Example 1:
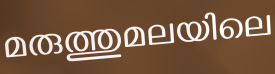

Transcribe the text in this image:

മരുത്തുമലയിലെ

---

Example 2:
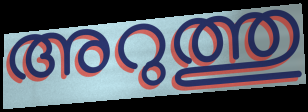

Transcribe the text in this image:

അറുത്തു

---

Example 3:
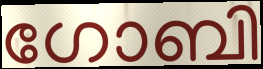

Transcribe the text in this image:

ഗോബി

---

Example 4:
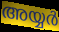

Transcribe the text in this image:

അയ്യർ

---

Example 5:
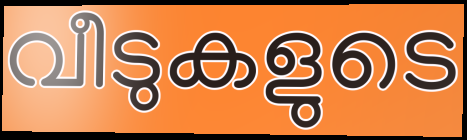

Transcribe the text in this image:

വീടുകളുടെ